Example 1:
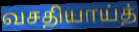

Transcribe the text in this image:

வசதியாய்த்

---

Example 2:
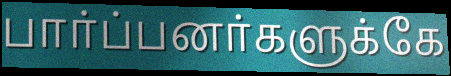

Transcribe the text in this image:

பார்ப்பனர்களுக்கே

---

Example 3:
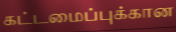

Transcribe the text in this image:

கட்டமைப்புக்கான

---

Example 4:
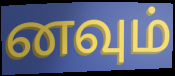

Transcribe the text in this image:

னவும்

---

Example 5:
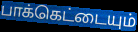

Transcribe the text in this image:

பாக்கெட்டையும்